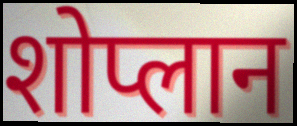
शोप्लान